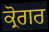
ਕ੍ਰੋਗਰ